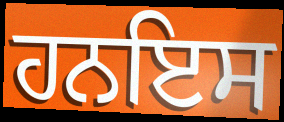
ਹਨਇਸ